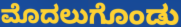
ಮೊದಲುಗೊಂಡು